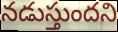
నడుస్తుందని